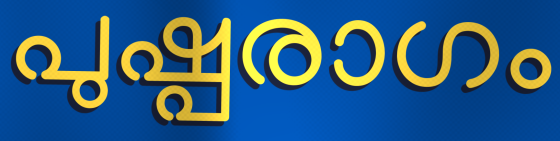
പുഷ്പരാഗം